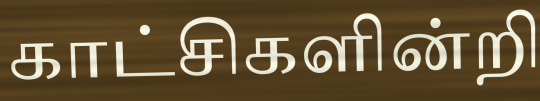
காட்சிகளின்றி